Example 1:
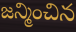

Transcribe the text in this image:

జన్మించిన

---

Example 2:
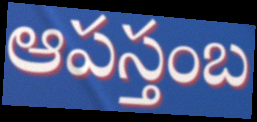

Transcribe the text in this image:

ఆపస్తంబ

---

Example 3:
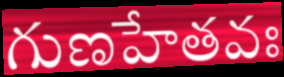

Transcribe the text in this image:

గుణహేతవః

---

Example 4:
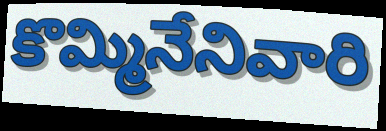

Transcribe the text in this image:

కొమ్మినేనివారి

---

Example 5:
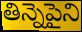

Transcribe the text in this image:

తిన్నెపైని